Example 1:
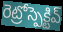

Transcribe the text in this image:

రెట్రోస్పెక్టివ్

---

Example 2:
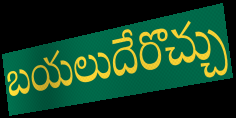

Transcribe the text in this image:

బయలుదేరొచ్చు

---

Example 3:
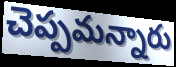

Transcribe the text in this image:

చెప్పమన్నారు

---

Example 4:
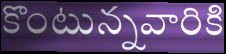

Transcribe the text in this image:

కొంటున్నవారికి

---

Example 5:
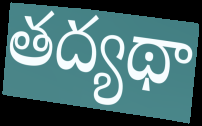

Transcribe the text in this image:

తద్యథా